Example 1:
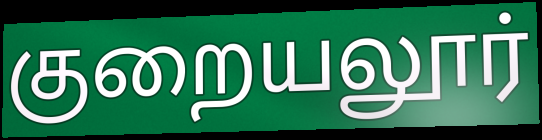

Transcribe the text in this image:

குறையலூர்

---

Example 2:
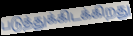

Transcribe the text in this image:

படுத்துக்கிடக்கிறது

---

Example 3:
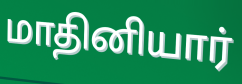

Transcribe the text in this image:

மாதினியார்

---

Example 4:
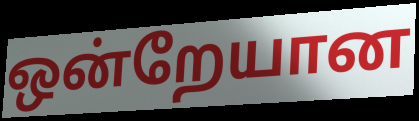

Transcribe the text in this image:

ஒன்றேயான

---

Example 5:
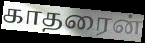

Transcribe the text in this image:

காதரைன்